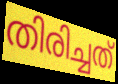
തിരിച്ചത്